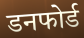
डनफोर्ड